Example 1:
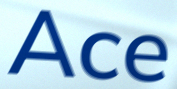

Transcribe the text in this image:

Ace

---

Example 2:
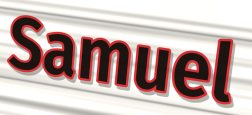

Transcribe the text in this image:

Samuel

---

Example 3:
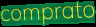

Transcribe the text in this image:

comprato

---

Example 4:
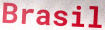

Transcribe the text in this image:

Brasil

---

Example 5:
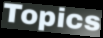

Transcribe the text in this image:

Topics